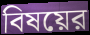
বিষয়ের